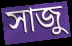
সাজু